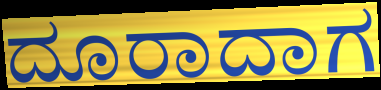
ದೂರಾದಾಗ